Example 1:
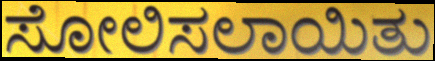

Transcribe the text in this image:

ಸೋಲಿಸಲಾಯಿತು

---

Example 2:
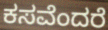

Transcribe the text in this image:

ಕಸವೆಂದರೆ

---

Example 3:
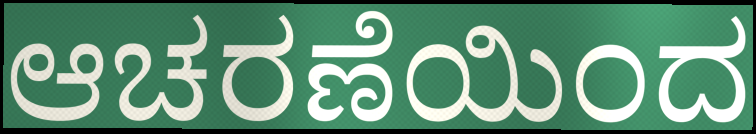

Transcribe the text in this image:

ಆಚರಣೆಯಿಂದ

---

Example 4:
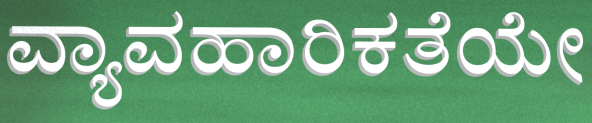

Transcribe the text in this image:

ವ್ಯಾವಹಾರಿಕತೆಯೇ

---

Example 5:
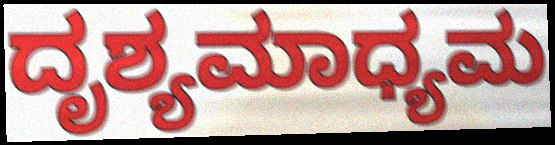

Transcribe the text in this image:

ದೃಶ್ಯಮಾಧ್ಯಮ